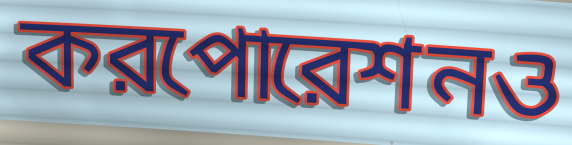
করপোরেশনও